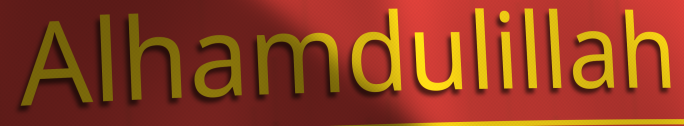
Alhamdulillah